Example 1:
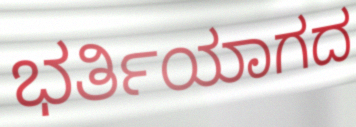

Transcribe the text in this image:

ಭರ್ತಿಯಾಗದ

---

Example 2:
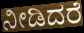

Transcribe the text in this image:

ನೀಡಿದರೆ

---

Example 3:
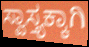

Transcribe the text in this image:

ಸ್ವಾಸ್ತ್ಯಕ್ಕಾಗಿ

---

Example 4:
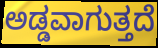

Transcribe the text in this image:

ಅಡ್ಡವಾಗುತ್ತದೆ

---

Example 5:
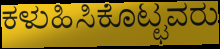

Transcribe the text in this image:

ಕಳುಹಿಸಿಕೊಟ್ಟವರು